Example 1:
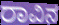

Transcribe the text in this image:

ರಾವಿನ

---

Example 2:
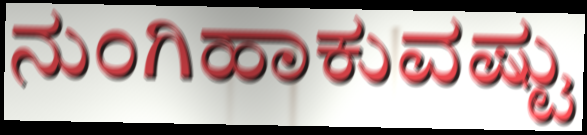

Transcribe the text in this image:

ನುಂಗಿಹಾಕುವಷ್ಟು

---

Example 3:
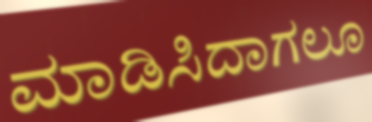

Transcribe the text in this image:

ಮಾಡಿಸಿದಾಗಲೂ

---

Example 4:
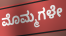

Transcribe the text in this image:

ಮೊಮ್ಮಗಳೇ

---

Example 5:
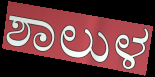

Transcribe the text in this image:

ಶಾಲುಳ